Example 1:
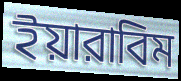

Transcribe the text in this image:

ইয়ারাবিম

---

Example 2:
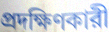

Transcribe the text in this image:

প্রদক্ষিণকারী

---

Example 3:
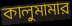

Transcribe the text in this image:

কালুমামার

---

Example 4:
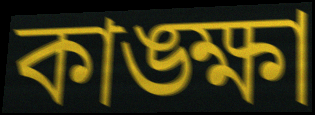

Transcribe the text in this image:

কাঙ্ক্ষা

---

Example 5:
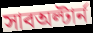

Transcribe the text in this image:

সাবঅল্টার্ন